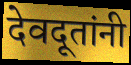
देवदूतांनी